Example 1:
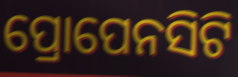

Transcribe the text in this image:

ପ୍ରୋପେନସିଟି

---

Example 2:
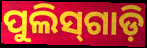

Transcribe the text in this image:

ପୁଲିସ୍‌ଗାଡ଼ି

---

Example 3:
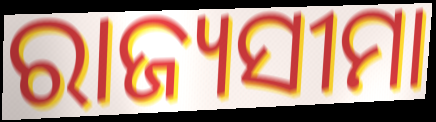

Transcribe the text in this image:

ରାଜ୍ୟସୀମା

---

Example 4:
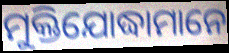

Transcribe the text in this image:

ମୁକ୍ତିଯୋଦ୍ଧାମାନେ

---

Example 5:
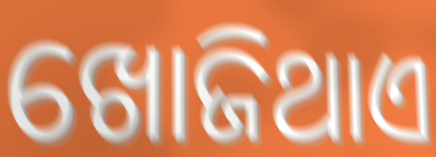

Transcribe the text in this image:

ଖୋଜିଥାଏ